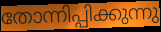
തോന്നിപ്പിക്കുന്നു